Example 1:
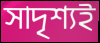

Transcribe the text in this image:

সাদৃশ্যই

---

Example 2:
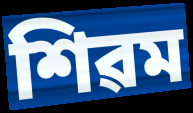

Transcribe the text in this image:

শিৱম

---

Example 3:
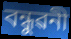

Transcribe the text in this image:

বন্ধুৱনী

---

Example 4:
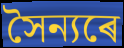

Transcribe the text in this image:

সৈন্যৰে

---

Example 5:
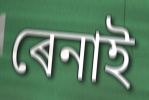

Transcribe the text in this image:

ৰেনাই